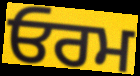
ਓਰਮ